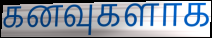
கனவுகளாக